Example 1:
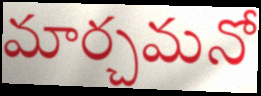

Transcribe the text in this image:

మార్చమనో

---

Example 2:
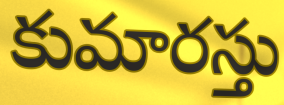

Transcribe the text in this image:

కుమారస్తు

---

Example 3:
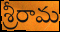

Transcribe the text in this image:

శ్రీరామ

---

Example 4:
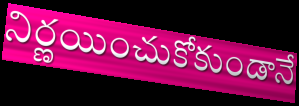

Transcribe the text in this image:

నిర్ణయించుకోకుండానే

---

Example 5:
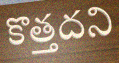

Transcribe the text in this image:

కొత్తదని